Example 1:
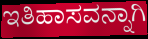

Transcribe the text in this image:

ಇತಿಹಾಸವನ್ನಾಗಿ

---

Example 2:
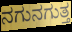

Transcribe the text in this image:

ನಗುನಗುತ್ತ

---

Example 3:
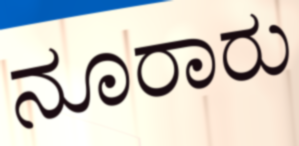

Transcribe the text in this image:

ನೂರಾರು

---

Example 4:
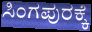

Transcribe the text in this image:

ಸಿಂಗಪುರಕ್ಕೆ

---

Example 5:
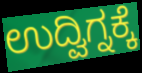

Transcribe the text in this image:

ಉದ್ವಿಗ್ನಕ್ಕೆ